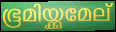
ഭൂമിയ്ക്കുമേല്